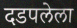
दडपलेला